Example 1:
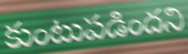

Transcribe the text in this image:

కుంటుపడిందని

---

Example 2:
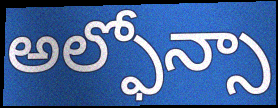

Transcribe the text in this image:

అల్ఫోన్సా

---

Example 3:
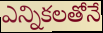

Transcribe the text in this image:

ఎన్నికలతోనే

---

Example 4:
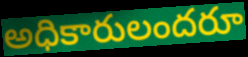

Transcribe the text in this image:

అధికారులందరూ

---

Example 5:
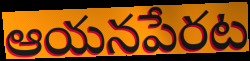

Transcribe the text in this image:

ఆయనపేరట